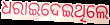
ଧରାଇଦେଇଥିଲେ